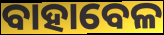
ବାହାବେଳ